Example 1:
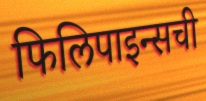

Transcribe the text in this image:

फिलिपाइन्सची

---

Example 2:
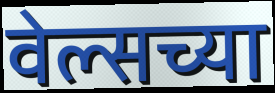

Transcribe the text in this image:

वेल्सच्या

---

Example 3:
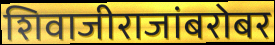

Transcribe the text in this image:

शिवाजीराजांबरोबर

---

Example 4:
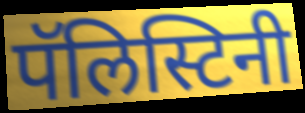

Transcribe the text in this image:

पॅलिस्टिनी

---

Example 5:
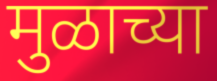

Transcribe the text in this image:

मुळाच्या